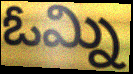
ఓమ్ని